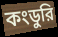
কংডুরি